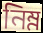
নিম্ন